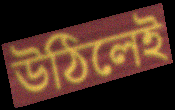
উঠিলেই